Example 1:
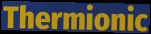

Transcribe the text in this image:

Thermionic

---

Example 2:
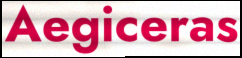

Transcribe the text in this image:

Aegiceras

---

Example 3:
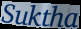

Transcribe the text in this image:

Suktha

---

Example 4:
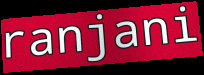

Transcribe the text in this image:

ranjani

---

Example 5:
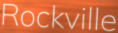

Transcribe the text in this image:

Rockville